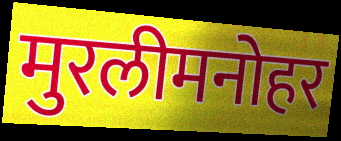
मुरलीमनोहर